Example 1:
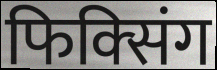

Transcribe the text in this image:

फिक्‍सिंग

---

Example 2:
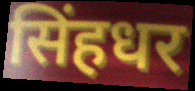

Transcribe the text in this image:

सिंहधर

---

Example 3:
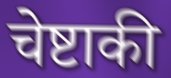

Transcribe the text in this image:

चेष्टाकी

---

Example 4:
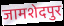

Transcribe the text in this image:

जामशेदपुर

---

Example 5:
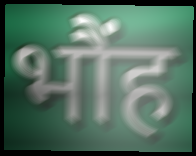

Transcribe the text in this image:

भौंह